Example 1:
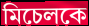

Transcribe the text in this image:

মিচেলকে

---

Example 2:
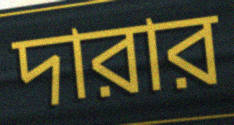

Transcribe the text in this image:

দারার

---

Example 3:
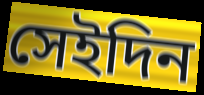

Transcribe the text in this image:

সেইদিন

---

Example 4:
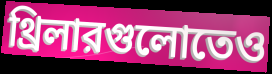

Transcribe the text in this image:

থ্রিলারগুলোতেও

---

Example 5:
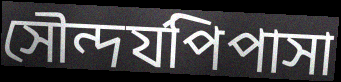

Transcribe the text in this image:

সৌন্দর্যপিপাসা